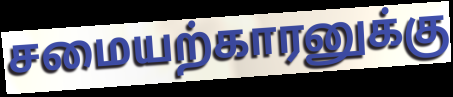
சமையற்காரனுக்கு